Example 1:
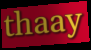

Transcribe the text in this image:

thaay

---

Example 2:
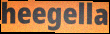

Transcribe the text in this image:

heegella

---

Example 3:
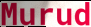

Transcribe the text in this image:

Murud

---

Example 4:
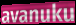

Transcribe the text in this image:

avanuku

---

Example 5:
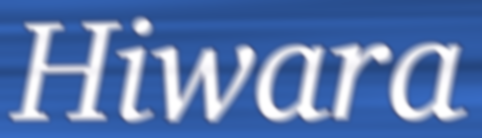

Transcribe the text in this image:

Hiwara